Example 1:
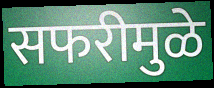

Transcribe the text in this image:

सफरीमुळे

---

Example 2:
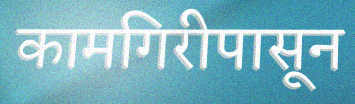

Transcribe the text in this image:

कामगिरीपासून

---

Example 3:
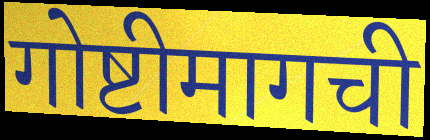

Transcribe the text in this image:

गोष्टीमागची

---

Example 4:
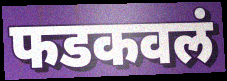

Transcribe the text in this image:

फडकवलं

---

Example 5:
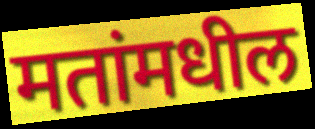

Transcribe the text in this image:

मतांमधील